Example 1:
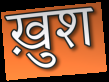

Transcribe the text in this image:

ख़ुश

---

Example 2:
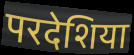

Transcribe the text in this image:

परदेशिया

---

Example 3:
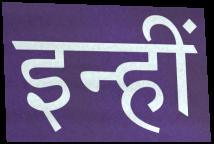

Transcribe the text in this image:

इन्‍हीं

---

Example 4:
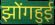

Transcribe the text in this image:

झोंगहुई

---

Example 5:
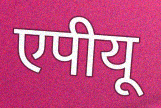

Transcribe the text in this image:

एपीयू